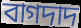
বাগদাদ